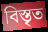
বিস্তৃত